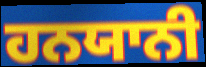
ਹਨਯਾਨੀ